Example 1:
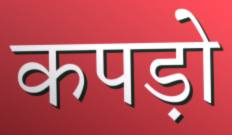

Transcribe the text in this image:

कपड़ो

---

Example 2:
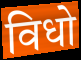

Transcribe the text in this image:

विधो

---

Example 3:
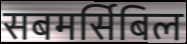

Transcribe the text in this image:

सबमर्सिबिल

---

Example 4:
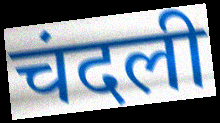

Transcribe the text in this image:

चंदली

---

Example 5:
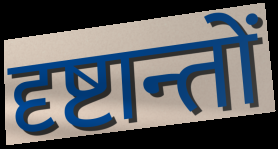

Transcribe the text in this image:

दृष्टान्तों